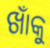
ଖାଁକୁ